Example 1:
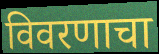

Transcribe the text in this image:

विवरणाचा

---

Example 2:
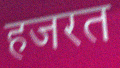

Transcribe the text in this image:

हजरत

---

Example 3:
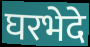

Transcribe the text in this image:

घरभेदे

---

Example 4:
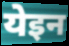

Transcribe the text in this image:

येइन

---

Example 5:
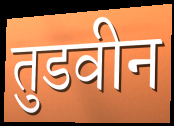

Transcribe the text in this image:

तुडवीन